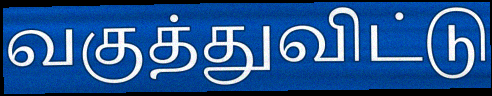
வகுத்துவிட்டு